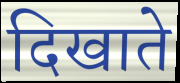
दिखाते